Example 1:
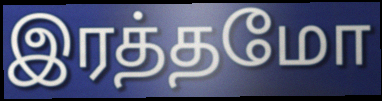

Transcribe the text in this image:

இரத்தமோ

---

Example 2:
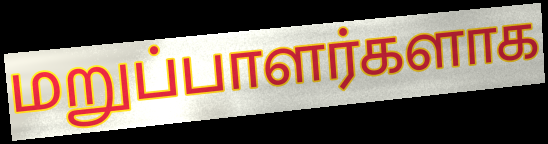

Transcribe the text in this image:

மறுப்பாளர்களாக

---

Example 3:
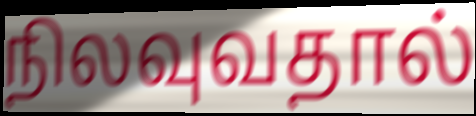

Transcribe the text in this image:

நிலவுவதால்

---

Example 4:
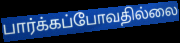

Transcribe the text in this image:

பார்க்கப்போவதில்லை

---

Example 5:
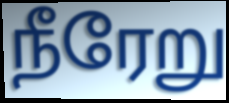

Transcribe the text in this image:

நீரேறு